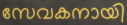
സേവകനായി